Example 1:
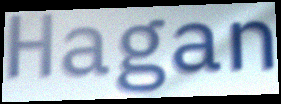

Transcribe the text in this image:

Hagan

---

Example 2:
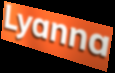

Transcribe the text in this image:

Lyanna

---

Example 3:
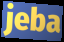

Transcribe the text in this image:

jeba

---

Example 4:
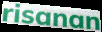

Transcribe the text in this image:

risanan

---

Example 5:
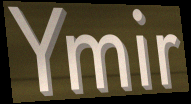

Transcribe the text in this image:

Ymir